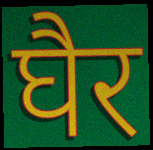
घैर